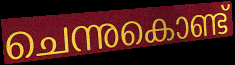
ചെന്നുകൊണ്ട്